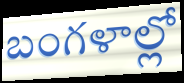
బంగళాల్లో